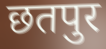
छतपुर